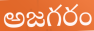
అజగరం